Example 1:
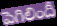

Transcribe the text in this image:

పెగిలిందీ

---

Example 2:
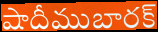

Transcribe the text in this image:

షాదీముబారక్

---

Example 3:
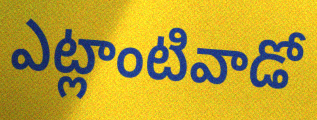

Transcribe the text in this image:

ఎట్లాంటివాడో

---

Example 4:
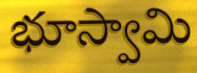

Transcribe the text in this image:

భూస్వామి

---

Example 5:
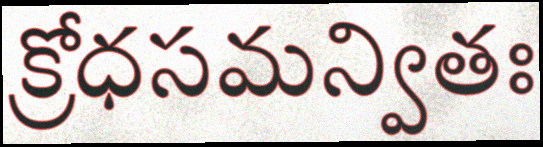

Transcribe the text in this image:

క్రోధసమన్వితః